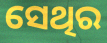
ସେଥିର